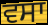
ਵਸਾ